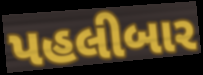
પહલીબાર